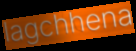
lagchhena